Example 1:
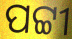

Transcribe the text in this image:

ପଟ୍ଟୀ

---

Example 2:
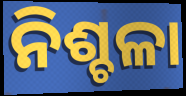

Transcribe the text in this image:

ନିଶ୍ଚଳା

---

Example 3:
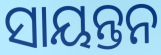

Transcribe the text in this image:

ସାୟନ୍ତନ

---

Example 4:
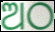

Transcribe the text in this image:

ଅଠ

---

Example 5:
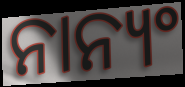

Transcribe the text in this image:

ନାନ୍ୟଂ